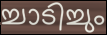
ച്ചാടിച്ചും